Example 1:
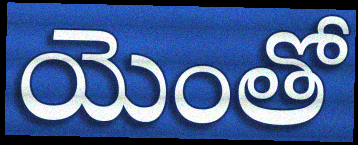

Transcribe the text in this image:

యెంతో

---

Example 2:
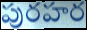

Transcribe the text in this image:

పురహర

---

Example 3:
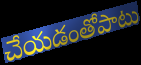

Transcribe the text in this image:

చేయడంతోపాటు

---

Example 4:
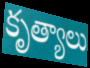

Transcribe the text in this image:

కృత్యాలు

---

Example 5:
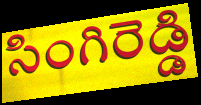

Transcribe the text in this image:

సింగిరెడ్డి